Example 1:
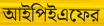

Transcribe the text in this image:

আইপিইএফের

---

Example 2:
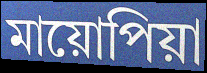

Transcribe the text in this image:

মায়োপিয়া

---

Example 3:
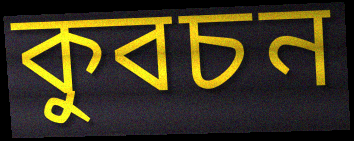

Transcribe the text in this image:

কুবচন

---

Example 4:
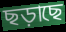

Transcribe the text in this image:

ছড়াছে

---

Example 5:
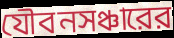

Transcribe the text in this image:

যৌবনসঞ্চারের